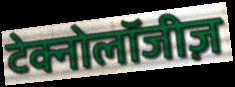
टेक्नोलॉजीज़